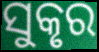
ସୁକୃର